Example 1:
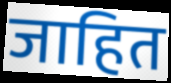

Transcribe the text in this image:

जाहित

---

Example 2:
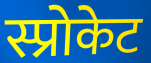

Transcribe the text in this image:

स्प्रोकेट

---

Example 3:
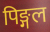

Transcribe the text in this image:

पिङ्गल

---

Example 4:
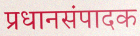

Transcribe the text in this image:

प्रधानसंपादक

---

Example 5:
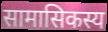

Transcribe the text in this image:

सामासिकस्य